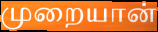
முறையான்